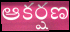
ఆకర్షణ